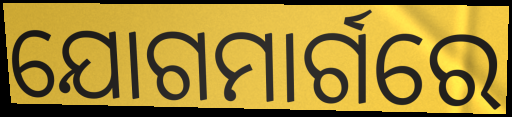
ଯୋଗମାର୍ଗରେ